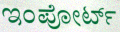
ಇಂಪೋರ್ಟ್